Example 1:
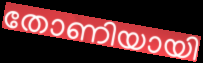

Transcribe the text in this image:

തോണിയായി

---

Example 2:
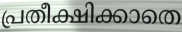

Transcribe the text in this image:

പ്രതീക്ഷിക്കാതെ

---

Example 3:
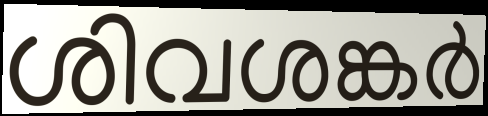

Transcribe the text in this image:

ശിവശങ്കർ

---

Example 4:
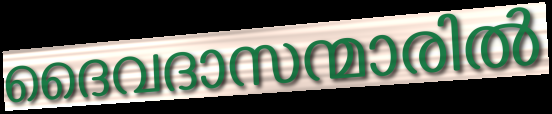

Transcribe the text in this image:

ദൈവദാസന്മാരിൽ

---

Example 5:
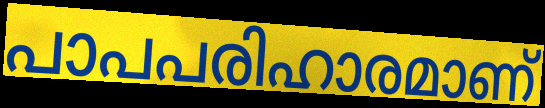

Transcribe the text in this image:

പാപപരിഹാരമാണ്